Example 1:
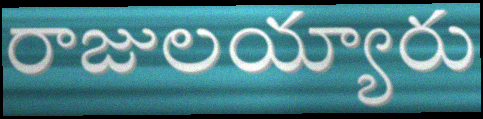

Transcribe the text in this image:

రాజులయ్యారు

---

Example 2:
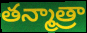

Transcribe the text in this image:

తన్మాత్రా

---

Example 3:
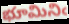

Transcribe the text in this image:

భూమినిఁ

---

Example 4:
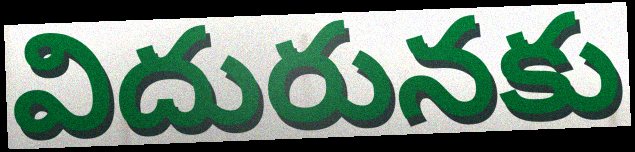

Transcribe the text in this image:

విదురునకు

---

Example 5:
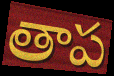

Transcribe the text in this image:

తాప